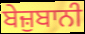
ਬੇਜ਼ੁਬਾਨੀ